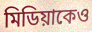
মিডিয়াকেও